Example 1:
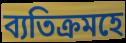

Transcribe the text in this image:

ব্যতিক্ৰমহে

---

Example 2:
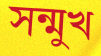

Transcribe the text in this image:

সন্মুখ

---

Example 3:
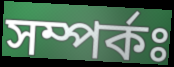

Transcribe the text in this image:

সম্পৰ্কঃ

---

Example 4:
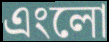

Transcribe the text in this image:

এংলো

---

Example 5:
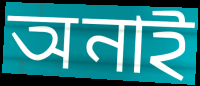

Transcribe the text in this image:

অনাই